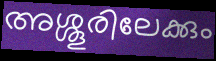
അശ്ശൂരിലേക്കും